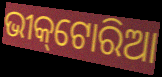
ଭୀକ୍‌ଟୋରିଆ